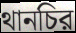
থানচির